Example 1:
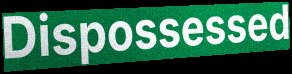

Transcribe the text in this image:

Dispossessed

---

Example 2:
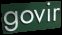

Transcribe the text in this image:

govir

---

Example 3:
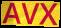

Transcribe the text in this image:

AVX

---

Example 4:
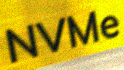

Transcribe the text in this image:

NVMe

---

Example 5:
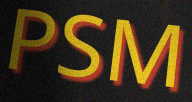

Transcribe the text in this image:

PSM